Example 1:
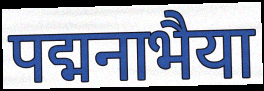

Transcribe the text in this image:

पद्मनाभैया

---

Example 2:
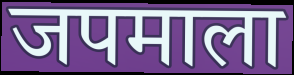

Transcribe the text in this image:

जपमाला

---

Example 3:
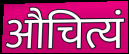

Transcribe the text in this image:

औचित्यं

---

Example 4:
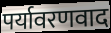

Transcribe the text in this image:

पर्यावरणवाद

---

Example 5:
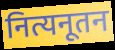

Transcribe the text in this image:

नित्यनूतन